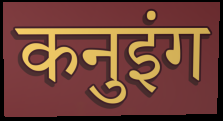
कनुइंग